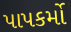
પાપકર્મો